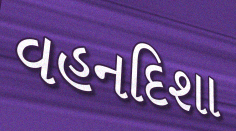
વહનદિશા